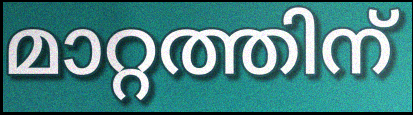
മാറ്റത്തിന്